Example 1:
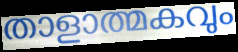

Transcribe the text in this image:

താളാത്മകവും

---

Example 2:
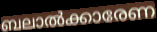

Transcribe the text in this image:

ബലാൽക്കാരേണ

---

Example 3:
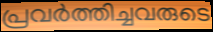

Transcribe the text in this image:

പ്രവർത്തിച്ചവരുടെ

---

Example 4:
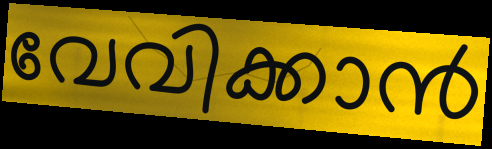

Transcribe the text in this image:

വേവിക്കാൻ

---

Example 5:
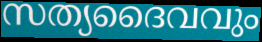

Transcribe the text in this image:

സത്യദൈവവും